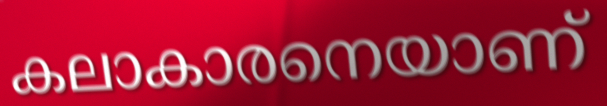
കലാകാരനെയാണ്